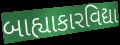
બાહ્યાકારવિદ્યા